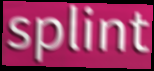
splint